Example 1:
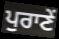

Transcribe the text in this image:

ਪੁਰਾਣੇਂ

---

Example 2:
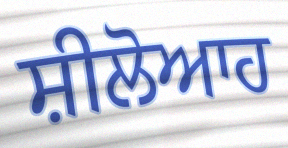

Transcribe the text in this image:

ਸ਼ੀਲੋਆਹ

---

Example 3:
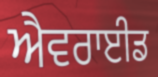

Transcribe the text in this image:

ਐਵਰਾਈਡ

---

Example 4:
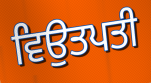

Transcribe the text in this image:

ਵਿਉਤਪਤੀ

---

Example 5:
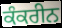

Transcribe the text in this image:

ਕੰਕਰੀਨ